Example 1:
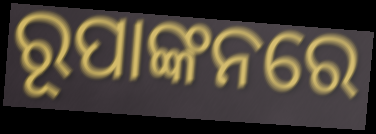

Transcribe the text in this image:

ରୂପାଙ୍କନରେ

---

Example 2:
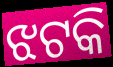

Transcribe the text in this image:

ଝଟକି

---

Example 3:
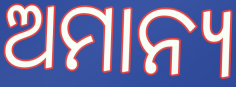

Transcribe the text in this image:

ଅମାନ୍ୟ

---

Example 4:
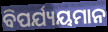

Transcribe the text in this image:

ବିପର୍ଯ୍ୟୟମାନ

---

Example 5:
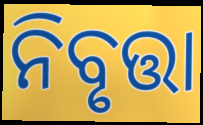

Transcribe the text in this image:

ନିବୃତ୍ତା